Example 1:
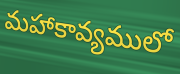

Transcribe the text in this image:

మహాకావ్యములో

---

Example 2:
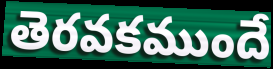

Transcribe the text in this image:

తెరవకముందే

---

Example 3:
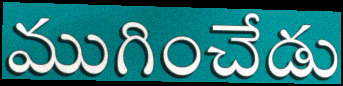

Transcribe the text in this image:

ముగించేడు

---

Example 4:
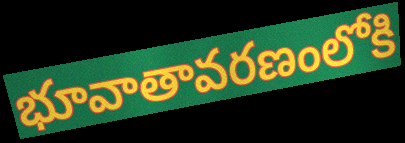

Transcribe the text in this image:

భూవాతావరణంలోకి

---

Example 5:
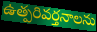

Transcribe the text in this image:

ఉత్పరివర్తనాలను